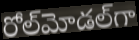
రోల్‌మోడల్‌గా